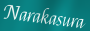
Narakasura